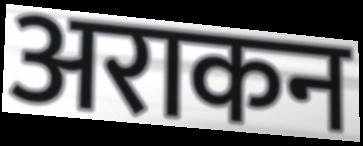
अराकन